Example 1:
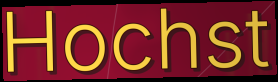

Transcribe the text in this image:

Hochst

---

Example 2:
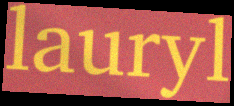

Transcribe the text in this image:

lauryl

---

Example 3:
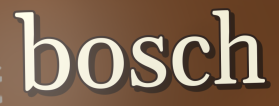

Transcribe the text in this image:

bosch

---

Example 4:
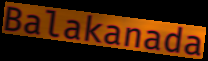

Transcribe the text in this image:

Balakanada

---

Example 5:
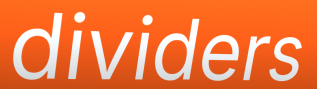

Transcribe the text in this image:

dividers